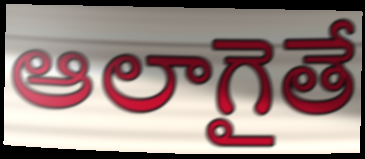
ఆలాగైతే